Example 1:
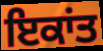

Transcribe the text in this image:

ਇਕਾਂਤ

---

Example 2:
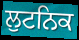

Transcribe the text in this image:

ਲੁਟਨਿਕ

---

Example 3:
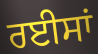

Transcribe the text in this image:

ਰਈਸਾਂ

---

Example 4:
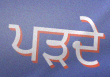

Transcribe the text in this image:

ਪੜਦੇ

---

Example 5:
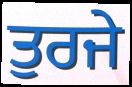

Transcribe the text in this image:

ਤੁਰਜੇ